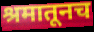
श्रमातूनच